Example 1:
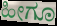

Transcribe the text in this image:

ಹೀಗೂ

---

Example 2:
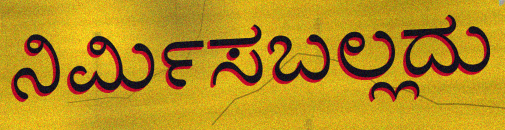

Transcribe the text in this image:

ನಿರ್ಮಿಸಬಲ್ಲದು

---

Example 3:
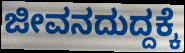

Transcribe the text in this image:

ಜೀವನದುದ್ದಕ್ಕೆ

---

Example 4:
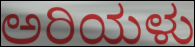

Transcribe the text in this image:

ಅರಿಯಳು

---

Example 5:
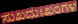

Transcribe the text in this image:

ಸುಖದುಃಖಂಗಳ